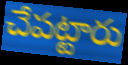
చేపట్టారు